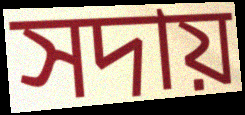
সদায়